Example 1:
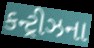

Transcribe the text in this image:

કન્ટ્રીઝના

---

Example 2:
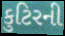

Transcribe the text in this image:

કુટિરની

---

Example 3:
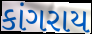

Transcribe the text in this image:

કાંગરાય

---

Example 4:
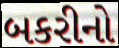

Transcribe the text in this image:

બકરીનો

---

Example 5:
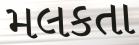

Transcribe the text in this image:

મલકતા